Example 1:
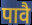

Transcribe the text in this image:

पावै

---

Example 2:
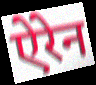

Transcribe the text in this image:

ऐरेन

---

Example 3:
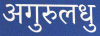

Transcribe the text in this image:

अगुरुलधु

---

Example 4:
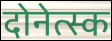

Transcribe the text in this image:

दोनेत्स्क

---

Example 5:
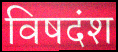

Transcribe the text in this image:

विषदंश